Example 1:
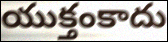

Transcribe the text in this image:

యుక్తంకాదు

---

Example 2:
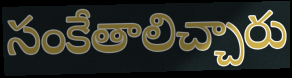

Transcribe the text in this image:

సంకేతాలిచ్చారు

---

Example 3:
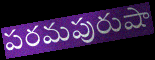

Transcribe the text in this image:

పరమపురుషా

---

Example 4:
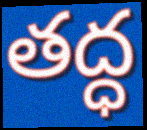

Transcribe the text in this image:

తద్ధ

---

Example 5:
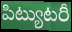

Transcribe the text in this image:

పిట్యుటరీ